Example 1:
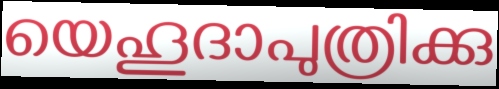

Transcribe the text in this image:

യെഹൂദാപുത്രിക്കു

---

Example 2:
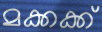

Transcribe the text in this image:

മക്കക്ക്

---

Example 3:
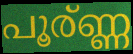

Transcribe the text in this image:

പൂര്ണ്ണ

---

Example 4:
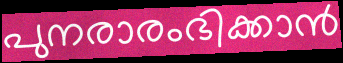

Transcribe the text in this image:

പുനരാരംഭിക്കാൻ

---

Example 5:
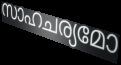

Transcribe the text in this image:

സാഹചര്യമോ